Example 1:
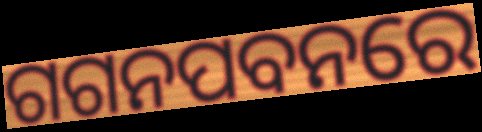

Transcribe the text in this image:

ଗଗନପବନରେ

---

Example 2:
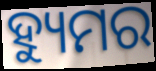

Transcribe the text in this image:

ହ୍ୟୁମର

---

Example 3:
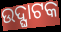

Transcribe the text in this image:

ଉଦ୍ଘାଟକ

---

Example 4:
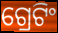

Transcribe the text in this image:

ଗ୍ରେଟିଂ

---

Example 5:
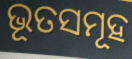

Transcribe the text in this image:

ଭୂତସମୂହ